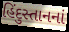
હિંદુસ્તાનનાં